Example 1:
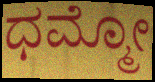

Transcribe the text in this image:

ಧಮ್ಮೋ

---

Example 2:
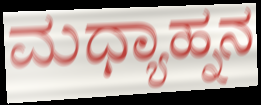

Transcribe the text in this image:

ಮಧ್ಯಾಹ್ನನ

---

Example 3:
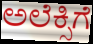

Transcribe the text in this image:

ಅಲೆಕ್ಸಿಗೆ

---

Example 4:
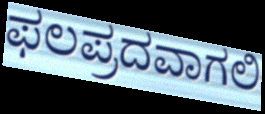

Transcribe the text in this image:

ಫಲಪ್ರದವಾಗಲಿ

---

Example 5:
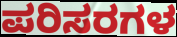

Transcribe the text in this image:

ಪರಿಸರಗಳ